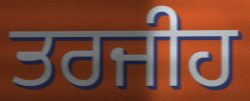
ਤਰਜੀਹ